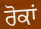
ਰੋਕਾਂ